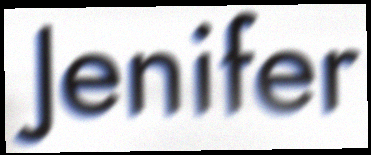
Jenifer